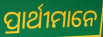
ପ୍ରାର୍ଥୀମାନେ